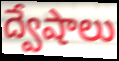
ద్వేషాలు